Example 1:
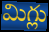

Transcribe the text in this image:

మిగ్లు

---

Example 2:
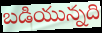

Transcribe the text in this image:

బడియున్నది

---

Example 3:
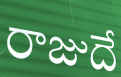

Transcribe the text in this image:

రాజుదే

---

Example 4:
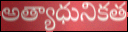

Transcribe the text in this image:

అత్యాధునికత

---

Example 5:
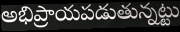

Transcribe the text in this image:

అభిప్రాయపడుతున్నట్టు